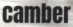
camber